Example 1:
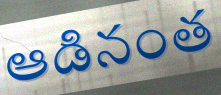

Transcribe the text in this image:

ఆడినంత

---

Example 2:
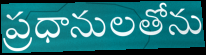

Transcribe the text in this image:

ప్రధానులతోను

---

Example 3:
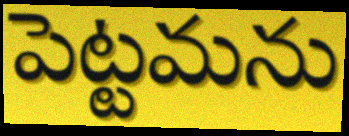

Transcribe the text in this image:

పెట్టమను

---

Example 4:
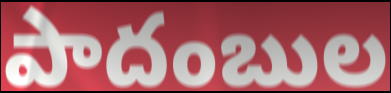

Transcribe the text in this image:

పాదంబుల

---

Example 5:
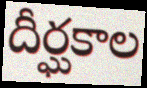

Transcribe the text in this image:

దీర్ఘకాల